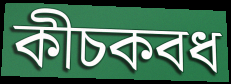
কীচকবধ